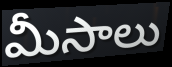
మీసాలు